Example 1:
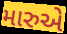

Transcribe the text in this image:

મારુએ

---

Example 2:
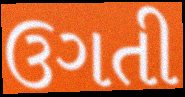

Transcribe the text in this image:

ઉગતી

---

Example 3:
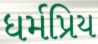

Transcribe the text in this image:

ધર્મપ્રિય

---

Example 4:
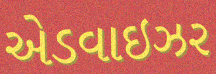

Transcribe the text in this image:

એડવાઇઝર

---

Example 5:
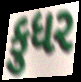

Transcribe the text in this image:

કુધર